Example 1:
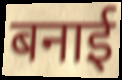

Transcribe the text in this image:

बनाई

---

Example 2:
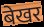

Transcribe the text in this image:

बेखर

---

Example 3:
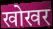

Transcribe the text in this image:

खोखर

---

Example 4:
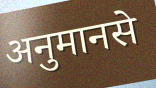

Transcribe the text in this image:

अनुमानसे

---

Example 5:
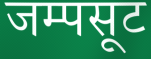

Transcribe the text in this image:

जम्पसूट